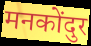
मनकोंदुर